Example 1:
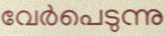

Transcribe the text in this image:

വേർപെടുന്നു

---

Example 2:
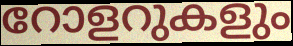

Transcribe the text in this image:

റോളറുകളും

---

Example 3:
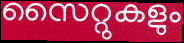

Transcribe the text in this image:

സൈറ്റുകളും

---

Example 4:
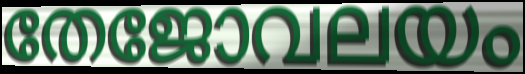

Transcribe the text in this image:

തേജോവലയം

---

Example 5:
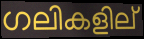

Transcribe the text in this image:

ഗലികളില്